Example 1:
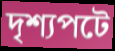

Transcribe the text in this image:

দৃশ্যপটে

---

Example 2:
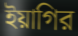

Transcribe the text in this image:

ইয়াগির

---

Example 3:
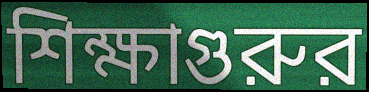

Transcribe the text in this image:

শিক্ষাগুরুর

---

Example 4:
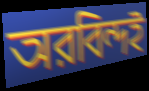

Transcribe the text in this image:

অরবিন্দই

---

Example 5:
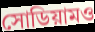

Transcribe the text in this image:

সোডিয়ামও